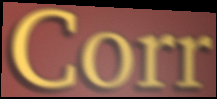
Corr